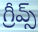
గ్రీవ్స్